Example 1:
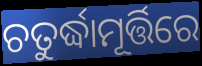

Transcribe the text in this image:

ଚତୁର୍ଦ୍ଧାମୂର୍ତ୍ତିରେ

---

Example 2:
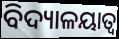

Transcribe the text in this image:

ବିଦ୍ୟାଳୟାତ୍ବ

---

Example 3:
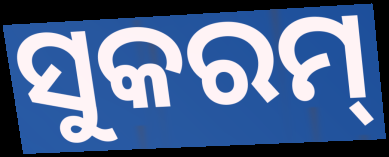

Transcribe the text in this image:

ସୁକରମ୍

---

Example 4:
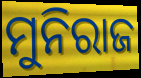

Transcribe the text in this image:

ମୁନିରାଜ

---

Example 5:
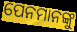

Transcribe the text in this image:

ପେନମାନଙ୍କୁ